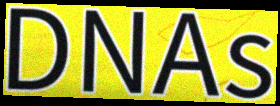
DNAs